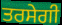
ਤਰਸੇਗੀ